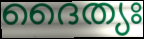
ദൈത്യഃ